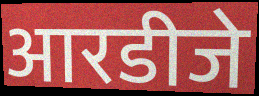
आरडीजे